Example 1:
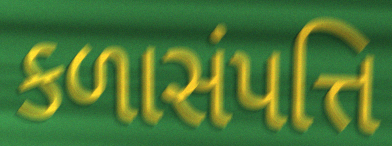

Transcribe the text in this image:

કળાસંપત્તિ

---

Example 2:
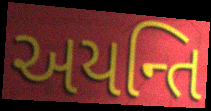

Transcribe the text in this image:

અયન્તિ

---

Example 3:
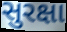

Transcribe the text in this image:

સુરક્ષા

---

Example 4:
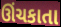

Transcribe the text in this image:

ઊંચકાતા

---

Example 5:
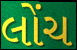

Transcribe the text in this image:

લોંચ